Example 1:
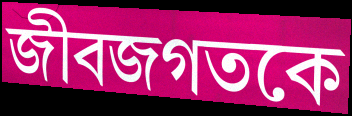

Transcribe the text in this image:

জীবজগতকে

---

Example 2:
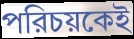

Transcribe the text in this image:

পরিচয়কেই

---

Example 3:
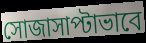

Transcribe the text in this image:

সোজাসাপ্টাভাবে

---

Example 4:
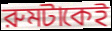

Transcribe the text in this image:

রুমটাকেই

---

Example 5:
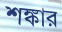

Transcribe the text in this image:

শঙ্কার